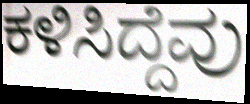
ಕಳಿಸಿದ್ದೆವು